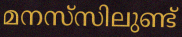
മനസ്‌സിലുണ്ട്